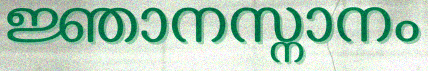
ജ്ഞാനസ്നാനം